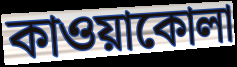
কাওয়াকোলা